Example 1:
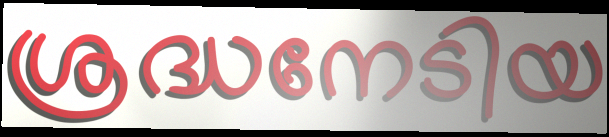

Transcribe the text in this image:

ശ്രദ്ധനേടിയ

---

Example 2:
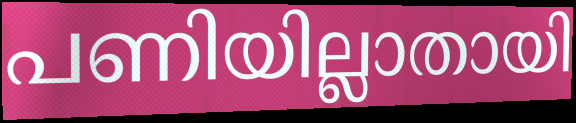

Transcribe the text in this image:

പണിയില്ലാതായി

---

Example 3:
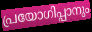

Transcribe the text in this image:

പ്രയോഗിപ്പാനും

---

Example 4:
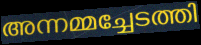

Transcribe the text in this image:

അന്നമ്മച്ചേടത്തി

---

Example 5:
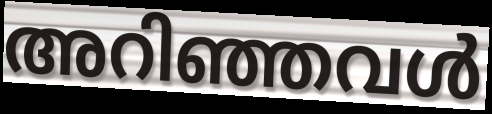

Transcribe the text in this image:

അറിഞ്ഞവൾ